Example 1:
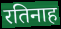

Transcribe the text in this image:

रतिनाह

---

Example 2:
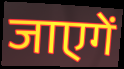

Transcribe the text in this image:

जाएगें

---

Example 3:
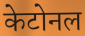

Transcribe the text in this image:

केटोनल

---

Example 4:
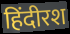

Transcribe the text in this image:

हिंदीरश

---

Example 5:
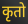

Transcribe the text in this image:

कृतो